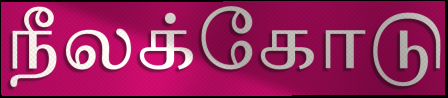
நீலக்கோடு